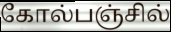
கோல்பஞ்சில்